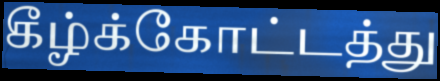
கீழ்க்கோட்டத்து